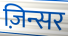
ज़िन्सर